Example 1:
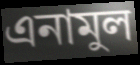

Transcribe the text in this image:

এনামুল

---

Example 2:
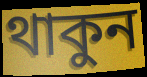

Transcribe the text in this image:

থাকুন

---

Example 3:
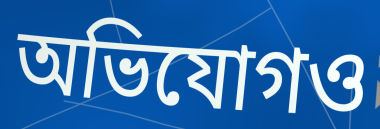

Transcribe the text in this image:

অভিযোগও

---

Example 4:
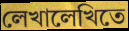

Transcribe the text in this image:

লেখালেখিতে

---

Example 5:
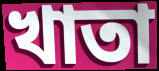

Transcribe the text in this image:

খাতা